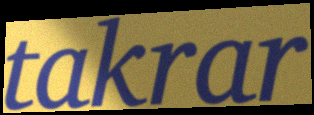
takrar